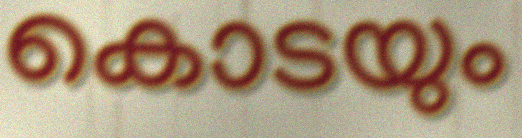
കൊടയും